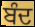
ਬੰਦ